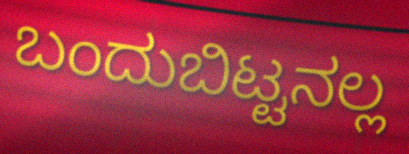
ಬಂದುಬಿಟ್ಟನಲ್ಲ